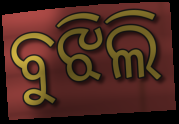
ବୁଝିଲି